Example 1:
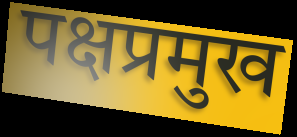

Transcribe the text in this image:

पक्षप्रमुख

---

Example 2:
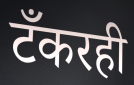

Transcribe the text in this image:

टँकरही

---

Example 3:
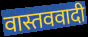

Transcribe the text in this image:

वास्तववादी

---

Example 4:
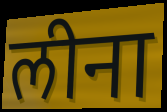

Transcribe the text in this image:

लीना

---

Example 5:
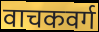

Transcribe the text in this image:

वाचकवर्ग